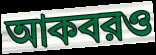
আকবরও